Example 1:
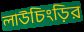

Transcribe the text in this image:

লাউচিংড়ির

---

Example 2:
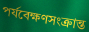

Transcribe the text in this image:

পর্যবেক্ষণসংক্রান্ত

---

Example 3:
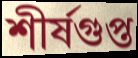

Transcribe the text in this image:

শীর্ষগুপ্ত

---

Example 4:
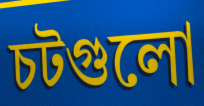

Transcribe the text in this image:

চটগুলো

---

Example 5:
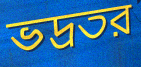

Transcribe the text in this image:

ভদ্রতর